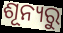
ଶୂନ୍ୟରୁ